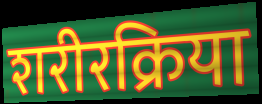
शरीरक्रिया